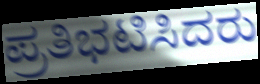
ಪ್ರತಿಭಟಿಸಿದರು